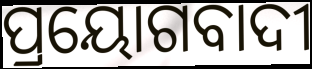
ପ୍ରୟୋଗବାଦୀ